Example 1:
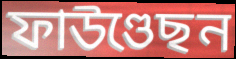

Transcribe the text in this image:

ফাউণ্ডেছন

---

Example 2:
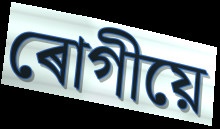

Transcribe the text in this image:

ৰোগীয়ে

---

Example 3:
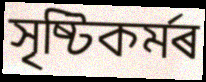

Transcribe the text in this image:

সৃষ্টিকৰ্মৰ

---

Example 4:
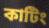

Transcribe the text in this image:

কাটিং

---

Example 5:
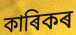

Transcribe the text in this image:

কাৰিকৰ